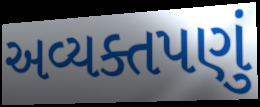
અવ્યક્તપણું